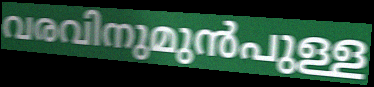
വരവിനുമുൻപുള്ള